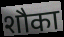
शौका